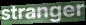
stranger